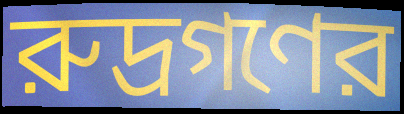
রুদ্রগণের